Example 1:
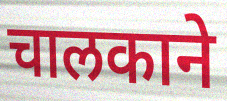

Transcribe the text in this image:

चालकाने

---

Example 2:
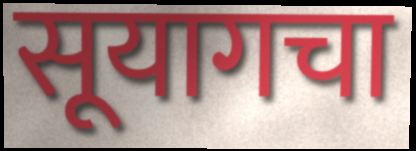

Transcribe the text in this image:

सूयागचा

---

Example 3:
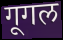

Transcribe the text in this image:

गूगल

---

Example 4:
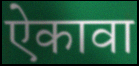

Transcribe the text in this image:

ऐकावा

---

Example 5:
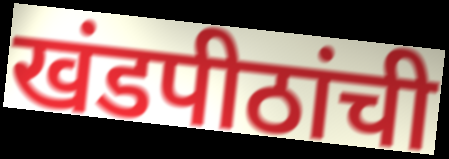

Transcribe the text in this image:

खंडपीठांची